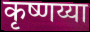
कृष्णय्या